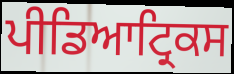
ਪੀਡਿਆਟ੍ਰਿਕਸ